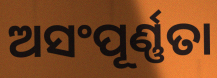
ଅସଂପୂର୍ଣ୍ଣତା